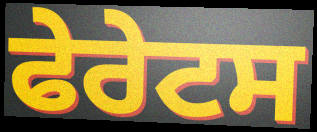
ਫੇਰੇਟਸ